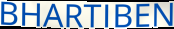
BHARTIBEN